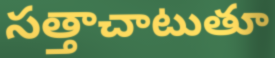
సత్తాచాటుతూ